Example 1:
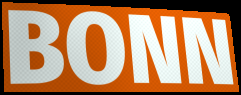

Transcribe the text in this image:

BONN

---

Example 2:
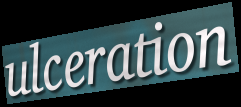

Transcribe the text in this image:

ulceration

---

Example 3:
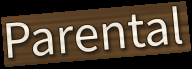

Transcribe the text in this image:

Parental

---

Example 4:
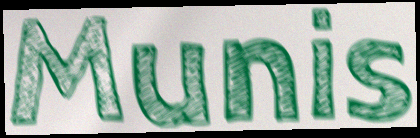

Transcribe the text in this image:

Munis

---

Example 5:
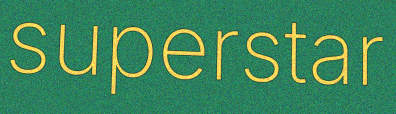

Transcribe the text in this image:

superstar